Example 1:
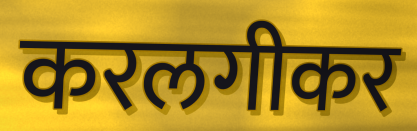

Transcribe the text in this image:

करलगीकर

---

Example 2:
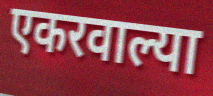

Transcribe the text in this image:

एकरवाल्या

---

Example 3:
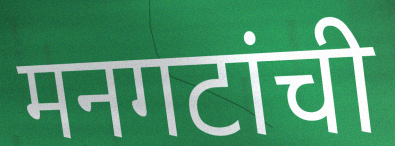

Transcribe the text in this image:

मनगटांची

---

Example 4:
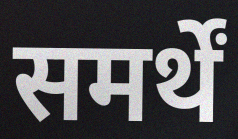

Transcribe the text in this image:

समर्थें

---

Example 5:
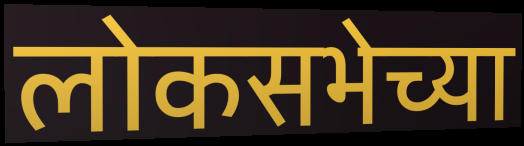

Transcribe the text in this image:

लोकसभेच्या